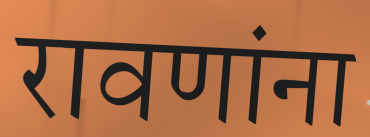
रावणांना